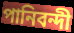
পানিবন্দী